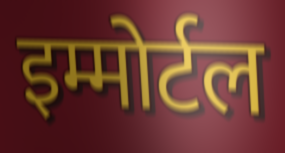
इम्मोर्टल